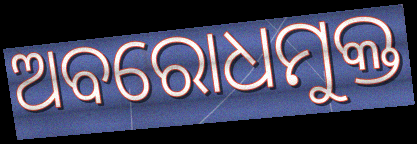
ଅବରୋଧମୁକ୍ତ